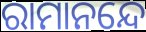
ରାମାନନ୍ଦେ